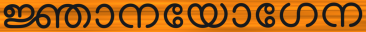
ജ്ഞാനയോഗേന